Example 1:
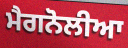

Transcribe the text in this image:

ਮੈਗਨੋਲੀਆ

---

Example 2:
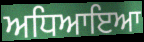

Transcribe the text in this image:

ਅਧਿਆਇਆ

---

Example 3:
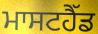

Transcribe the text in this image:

ਮਾਸਟਹੈੱਡ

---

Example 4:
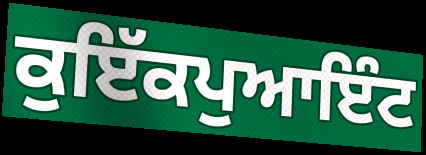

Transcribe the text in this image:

ਕੁਇੱਕਪੁਆਇੰਟ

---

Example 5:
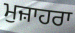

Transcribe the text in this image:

ਮੁਜ਼ਾਹਰਾ